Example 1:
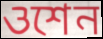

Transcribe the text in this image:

ওশেন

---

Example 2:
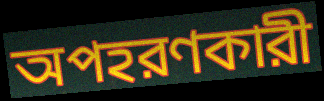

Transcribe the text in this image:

অপহরণকারী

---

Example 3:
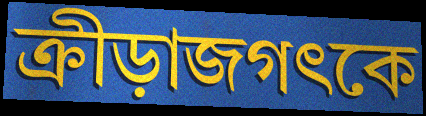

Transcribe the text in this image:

ক্রীড়াজগৎকে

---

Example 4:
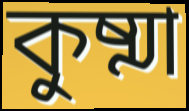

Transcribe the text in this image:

কুষ্মা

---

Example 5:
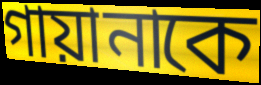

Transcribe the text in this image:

গায়ানাকে